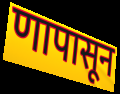
णापासून